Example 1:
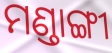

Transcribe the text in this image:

ମଣ୍ଡାଙ୍ଗୀ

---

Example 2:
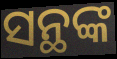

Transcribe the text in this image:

ସନ୍ଥଙ୍କ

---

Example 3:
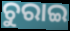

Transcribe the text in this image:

ଚୁରାଇ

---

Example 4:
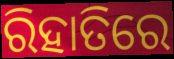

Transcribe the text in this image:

ରିହାତିରେ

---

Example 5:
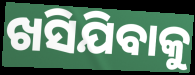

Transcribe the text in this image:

ଖସିଯିବାକୁ